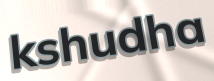
kshudha